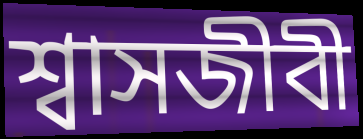
শ্বাসজীবী